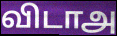
விடாஅ